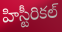
హిస్టీరికల్